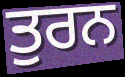
ਤੁਰਨ